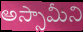
అస్సామీని